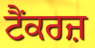
ਟੈਂਕਰਜ਼